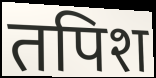
तपिश